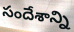
సందేశాన్ని